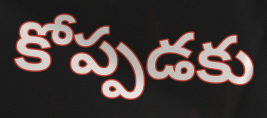
కోప్పడకు